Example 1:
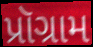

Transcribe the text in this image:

પ્રૉગ્રામ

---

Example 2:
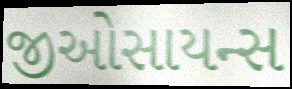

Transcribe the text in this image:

જીઓસાયન્સ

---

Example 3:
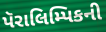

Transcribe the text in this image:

પૅરાલિમ્પિકની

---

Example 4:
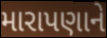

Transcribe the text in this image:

મારાપણાને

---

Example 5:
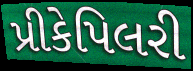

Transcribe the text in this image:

પ્રીકેપિલરી